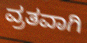
ವ್ರತವಾಗಿ